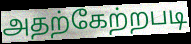
அதற்கேற்றபடி